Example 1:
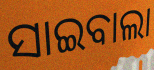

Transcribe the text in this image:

ସାଇବାଲା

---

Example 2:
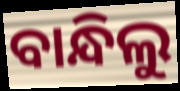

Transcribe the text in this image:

ବାନ୍ଧିଲୁ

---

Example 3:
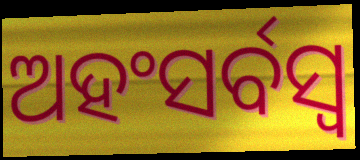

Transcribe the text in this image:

ଅହଂସର୍ବସ୍ୱ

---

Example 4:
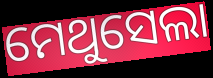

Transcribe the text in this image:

ମେଥୁସେଲା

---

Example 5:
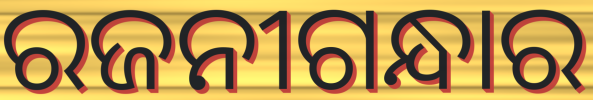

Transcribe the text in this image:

ରଜନୀଗନ୍ଧାର